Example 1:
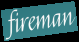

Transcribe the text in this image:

fireman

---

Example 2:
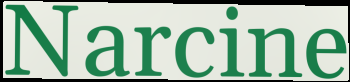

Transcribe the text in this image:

Narcine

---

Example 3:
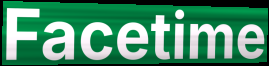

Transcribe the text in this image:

Facetime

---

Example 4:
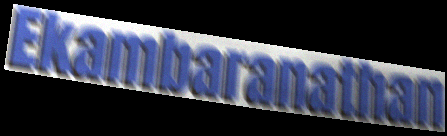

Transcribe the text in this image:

Ekambaranathan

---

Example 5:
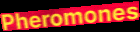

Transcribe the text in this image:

Pheromones